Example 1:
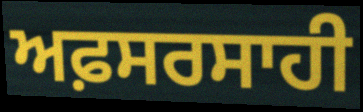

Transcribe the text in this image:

ਅਫ਼ਸਰਸਾਹੀ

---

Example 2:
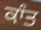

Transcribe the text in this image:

ਕਾੰਤ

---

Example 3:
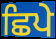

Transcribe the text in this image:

ਛਿਪੇ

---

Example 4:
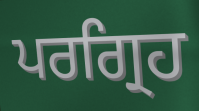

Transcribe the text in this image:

ਪਰਗ੍ਰਿਹ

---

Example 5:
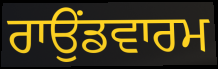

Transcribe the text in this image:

ਰਾਉਂਡਵਾਰਮ